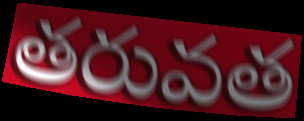
తరువత